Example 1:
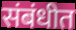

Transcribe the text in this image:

संबंधीत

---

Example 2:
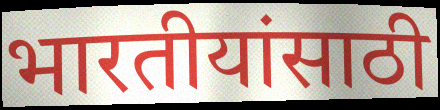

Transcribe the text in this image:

भारतीयांसाठी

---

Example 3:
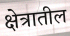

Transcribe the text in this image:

क्षेत्रातील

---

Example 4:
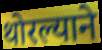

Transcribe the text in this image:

थोरल्याने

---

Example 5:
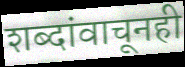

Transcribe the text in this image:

शब्दांवाचूनही